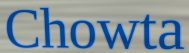
Chowta